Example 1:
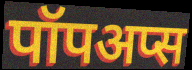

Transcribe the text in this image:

पॉपअप्स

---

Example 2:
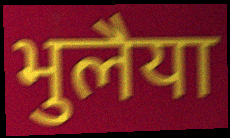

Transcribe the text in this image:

भुलैया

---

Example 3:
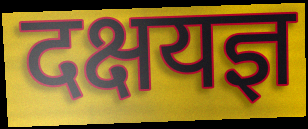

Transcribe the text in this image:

दक्षयज्ञ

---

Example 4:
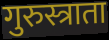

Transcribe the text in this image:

गुरुस्त्राता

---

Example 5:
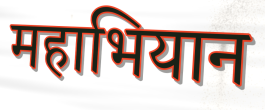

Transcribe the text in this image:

महाभियान